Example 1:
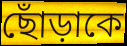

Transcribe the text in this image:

ছোঁড়াকে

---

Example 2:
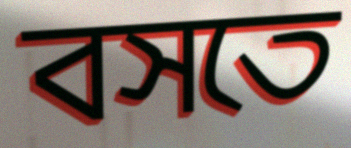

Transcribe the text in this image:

বসতে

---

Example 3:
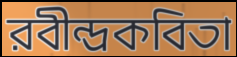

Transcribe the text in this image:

রবীন্দ্রকবিতা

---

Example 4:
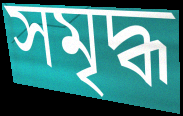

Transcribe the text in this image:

সমৃদ্ধ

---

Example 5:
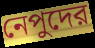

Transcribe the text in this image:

নেপুদের